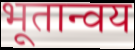
भूतान्वय